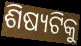
ଶିଷ୍ୟଟିକୁ